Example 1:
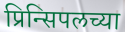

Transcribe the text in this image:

प्रिन्सिपलच्या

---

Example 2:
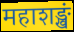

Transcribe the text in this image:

महाशङ्खं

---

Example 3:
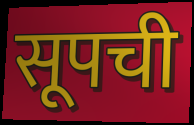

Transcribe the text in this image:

सूपची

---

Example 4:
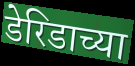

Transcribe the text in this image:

डेरिडाच्या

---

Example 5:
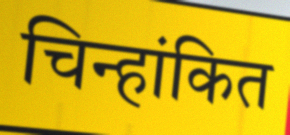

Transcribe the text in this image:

चिन्हांकित